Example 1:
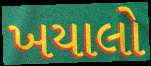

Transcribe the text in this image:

ખયાલો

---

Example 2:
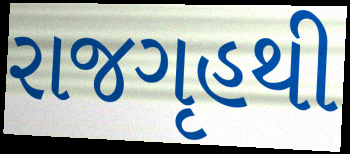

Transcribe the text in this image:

રાજગૃહથી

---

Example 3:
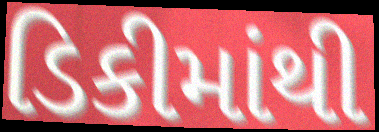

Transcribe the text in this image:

ડિકીમાંથી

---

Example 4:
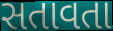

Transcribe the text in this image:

સતાવતા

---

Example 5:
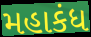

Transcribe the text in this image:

મહાકંધ